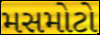
મસમોટો